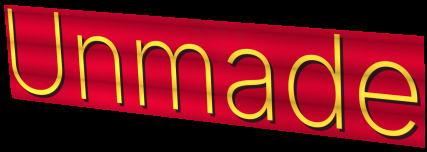
Unmade